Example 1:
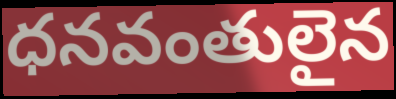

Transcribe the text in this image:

ధనవంతులైన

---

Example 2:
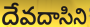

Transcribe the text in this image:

దేవదాసిని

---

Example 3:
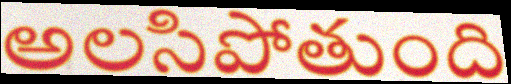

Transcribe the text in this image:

అలసిపోతుంది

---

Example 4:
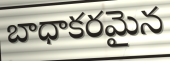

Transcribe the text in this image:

బాధాకరమైన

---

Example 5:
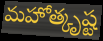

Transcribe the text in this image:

మహోత్కృష్ట